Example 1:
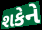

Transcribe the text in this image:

શકેને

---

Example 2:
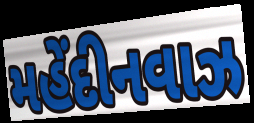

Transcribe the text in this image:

મહેંદીનવાઝ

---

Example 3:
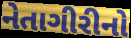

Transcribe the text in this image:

નેતાગીરીનો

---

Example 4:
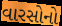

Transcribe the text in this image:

વારસોનો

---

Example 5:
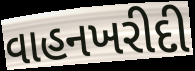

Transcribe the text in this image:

વાહનખરીદી